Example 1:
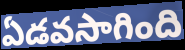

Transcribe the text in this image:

ఏడవసాగింది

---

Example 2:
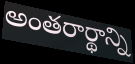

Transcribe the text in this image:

అంతరార్థాన్ని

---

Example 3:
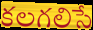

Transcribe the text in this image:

కలగలిసే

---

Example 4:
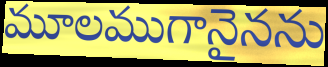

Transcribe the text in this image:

మూలముగానైనను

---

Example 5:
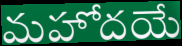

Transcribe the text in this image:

మహోదయే